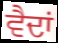
ਵੈਦਾਂ